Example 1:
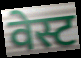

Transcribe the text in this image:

वेस्ट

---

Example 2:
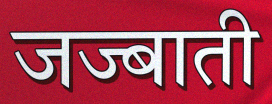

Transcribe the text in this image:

जज्बाती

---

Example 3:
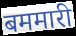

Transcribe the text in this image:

बममारी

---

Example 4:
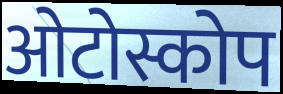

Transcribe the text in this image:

ओटोस्कोप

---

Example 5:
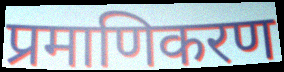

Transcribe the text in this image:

प्रमाणिकरण